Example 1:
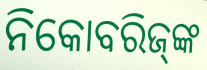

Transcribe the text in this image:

ନିକୋବରିଜ୍‍ଙ୍କ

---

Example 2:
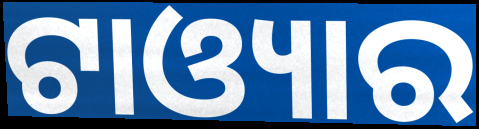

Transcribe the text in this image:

ଟାଓ୍ୟାର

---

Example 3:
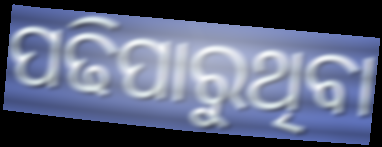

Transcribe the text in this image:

ପଢିପାରୁଥିବା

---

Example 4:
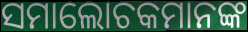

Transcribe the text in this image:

ସମାଲୋଚକମାନଙ୍କ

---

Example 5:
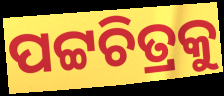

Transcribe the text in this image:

ପଟ୍ଟଚିତ୍ରକୁ